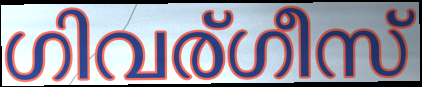
ഗിവര്ഗീസ്